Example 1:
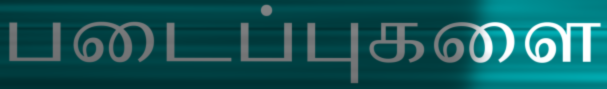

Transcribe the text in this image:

படைப்புகளை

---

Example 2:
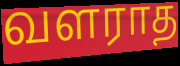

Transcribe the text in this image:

வளராத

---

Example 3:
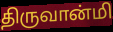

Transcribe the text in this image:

திருவான்மி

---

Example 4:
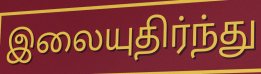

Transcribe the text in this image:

இலையுதிர்ந்து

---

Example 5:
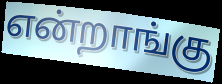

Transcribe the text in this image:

என்றாங்கு